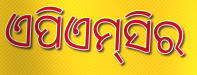
ଏପିଏମ୍‌ସିର